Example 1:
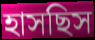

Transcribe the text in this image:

হাসছিস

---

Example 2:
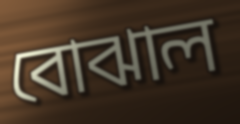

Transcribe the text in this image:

বোঝাল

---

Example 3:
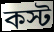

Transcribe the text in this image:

কস্ট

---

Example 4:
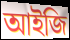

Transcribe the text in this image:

আইজি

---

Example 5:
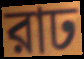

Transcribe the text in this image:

রাঢ